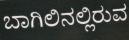
ಬಾಗಿಲಿನಲ್ಲಿರುವ